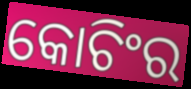
କୋଚିଂର